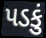
પડકું